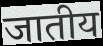
जातीय